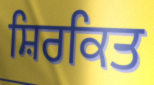
ਸ਼ਿਰਕਿਤ